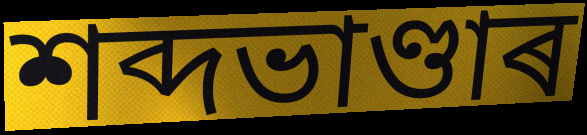
শব্দভাণ্ডাৰ